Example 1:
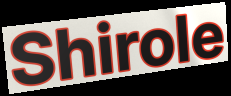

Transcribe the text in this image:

Shirole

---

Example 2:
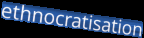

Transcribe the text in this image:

ethnocratisation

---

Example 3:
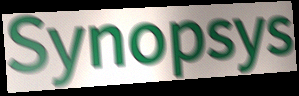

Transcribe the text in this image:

Synopsys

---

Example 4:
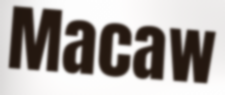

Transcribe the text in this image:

Macaw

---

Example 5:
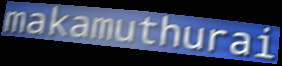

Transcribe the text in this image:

makamuthurai